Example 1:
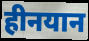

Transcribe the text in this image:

हीनयान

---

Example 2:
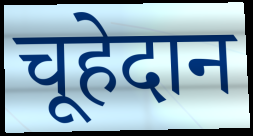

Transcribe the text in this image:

चूहेदान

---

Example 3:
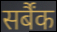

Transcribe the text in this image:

सर्बैंक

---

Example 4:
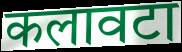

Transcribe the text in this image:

कलावटा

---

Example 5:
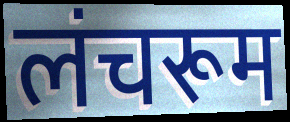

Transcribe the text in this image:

लंचरूम